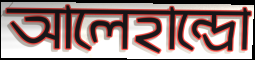
আলেহান্দ্রো